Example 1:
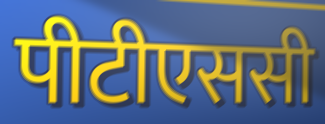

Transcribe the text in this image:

पीटीएससी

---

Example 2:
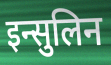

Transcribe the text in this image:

इन्सुलिन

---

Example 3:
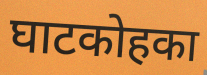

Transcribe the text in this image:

घाटकोहका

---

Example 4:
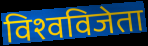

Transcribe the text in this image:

विश्वविजेता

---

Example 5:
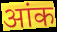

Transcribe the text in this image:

आंक